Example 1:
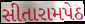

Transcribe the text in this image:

સીતારામપેઠ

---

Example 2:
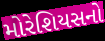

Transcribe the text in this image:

મોરેશિયસનો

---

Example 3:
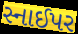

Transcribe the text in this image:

સ્નાઈપર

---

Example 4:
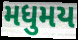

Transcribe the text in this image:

મધુમય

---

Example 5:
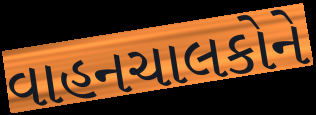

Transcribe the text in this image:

વાહનચાલકોને